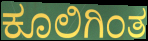
ಕೂಲಿಗಿಂತ